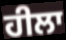
ਹੀਲਾ